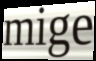
mige